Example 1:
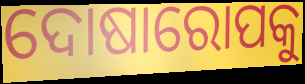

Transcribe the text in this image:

ଦୋଷାରୋପକୁ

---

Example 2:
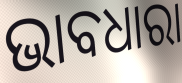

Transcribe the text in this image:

ଭାବଧାରା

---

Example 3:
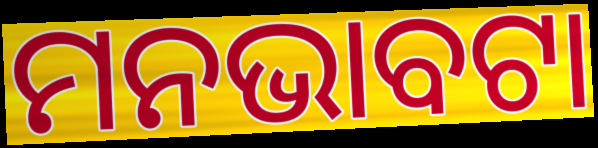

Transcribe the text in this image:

ମନଭାବଟା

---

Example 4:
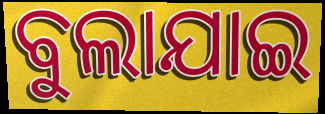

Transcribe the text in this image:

ବୁଲାଯାଇ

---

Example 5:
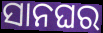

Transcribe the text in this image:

ସାନଘର